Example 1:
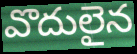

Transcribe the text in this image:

వొదులైన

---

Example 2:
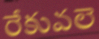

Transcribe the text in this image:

రేకువలె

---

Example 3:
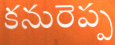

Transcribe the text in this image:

కనురెప్ప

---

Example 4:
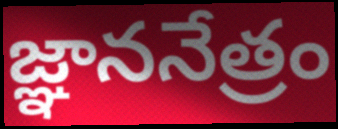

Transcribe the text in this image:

జ్ఞాననేత్రం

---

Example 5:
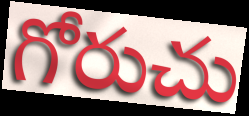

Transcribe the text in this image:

గోరుచు